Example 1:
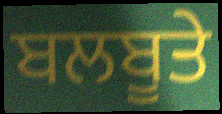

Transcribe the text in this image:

ਬਲਬੂਤੇ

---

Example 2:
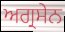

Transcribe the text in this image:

ਅਗ੍ਰਸੇਨ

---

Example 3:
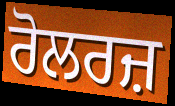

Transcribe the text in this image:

ਰੋਲਰਜ਼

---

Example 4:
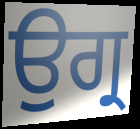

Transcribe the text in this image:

ਉਗ੍ਰ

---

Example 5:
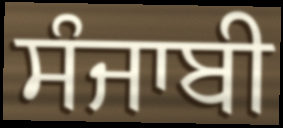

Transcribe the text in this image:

ਸੰਜਾਬੀ